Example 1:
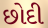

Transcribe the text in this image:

છોદી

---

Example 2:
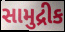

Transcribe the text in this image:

સામુદ્રીક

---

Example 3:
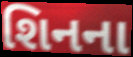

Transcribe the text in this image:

શિનના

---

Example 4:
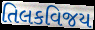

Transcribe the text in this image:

તિલકવિજય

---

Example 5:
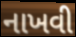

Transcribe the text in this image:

નાખવી